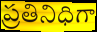
ప్రతినిధిగా